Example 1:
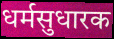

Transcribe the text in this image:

धर्मसुधारक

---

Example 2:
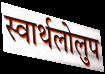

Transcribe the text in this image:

स्वार्थलोलुप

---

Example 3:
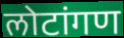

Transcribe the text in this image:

लोटांगण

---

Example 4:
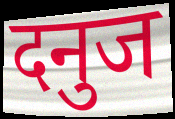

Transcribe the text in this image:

दनुज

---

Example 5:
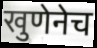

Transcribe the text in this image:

खुणेनेच